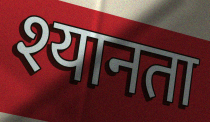
श्यानता